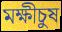
মক্ষীচুষ